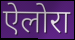
ऐलोरा